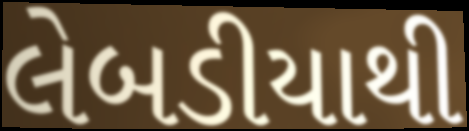
લેબડીયાથી